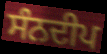
ਸੰਨਦੀਪ